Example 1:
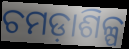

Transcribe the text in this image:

ଚମଡ଼ାଶିଳ୍ପ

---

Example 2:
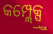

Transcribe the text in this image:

କମ୍ପ୍ଲେକ୍ସ୍ରୁ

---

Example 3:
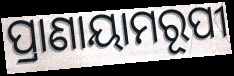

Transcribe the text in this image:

ପ୍ରାଣାୟାମରୂପୀ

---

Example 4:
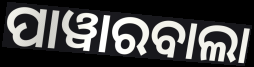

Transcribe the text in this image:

ପାୱାରବାଲା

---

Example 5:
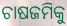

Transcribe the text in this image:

ଚାଷଜମିକୁ